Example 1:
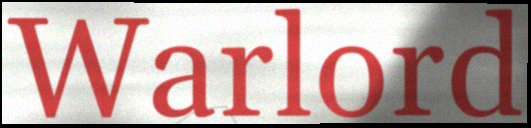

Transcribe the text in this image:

Warlord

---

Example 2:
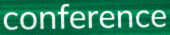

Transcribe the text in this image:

conference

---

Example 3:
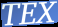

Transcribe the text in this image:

TEX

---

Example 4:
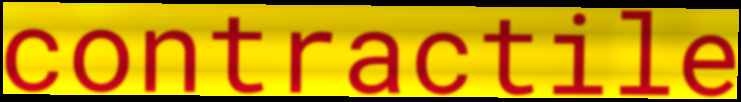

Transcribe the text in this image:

contractile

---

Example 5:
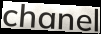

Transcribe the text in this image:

chanel